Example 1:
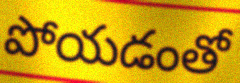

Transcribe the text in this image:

పోయడంతో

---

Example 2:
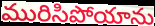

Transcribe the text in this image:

మురిసిపోయాను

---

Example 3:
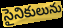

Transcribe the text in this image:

సైనికులును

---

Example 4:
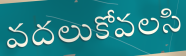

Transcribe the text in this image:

వదలుకోవలసి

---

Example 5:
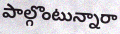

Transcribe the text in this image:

పాల్గొంటున్నారా